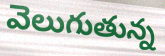
వెలుగుతున్న